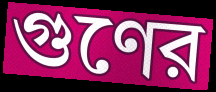
গুণের